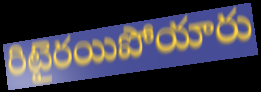
రిటైరయిపోయారు